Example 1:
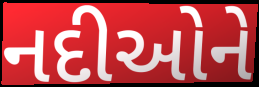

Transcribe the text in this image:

નદીઓને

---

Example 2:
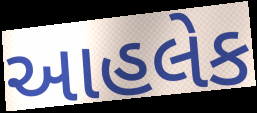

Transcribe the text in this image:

આહલેક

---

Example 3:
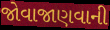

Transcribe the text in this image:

જોવાજાણવાની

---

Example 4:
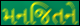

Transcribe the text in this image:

મનજિતને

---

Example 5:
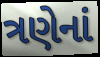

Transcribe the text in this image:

ત્રણેનાં